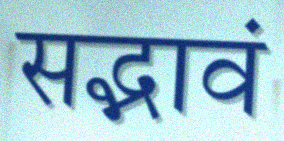
सद्भावं